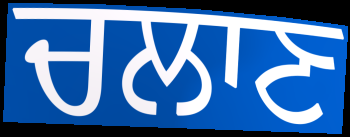
ਚਲਾਣ